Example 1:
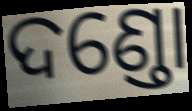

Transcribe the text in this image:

ଦଣ୍ଡୋ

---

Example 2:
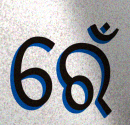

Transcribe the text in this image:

ରେଁ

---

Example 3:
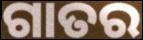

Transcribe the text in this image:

ଗାତର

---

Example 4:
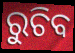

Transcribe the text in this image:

ରୁଚିବ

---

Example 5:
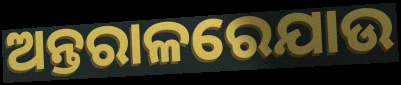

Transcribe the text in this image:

ଅନ୍ତରାଳରେଯାଉ